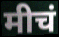
मीचं